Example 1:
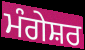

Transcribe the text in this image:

ਮੰਗੇਸ਼ਰ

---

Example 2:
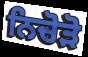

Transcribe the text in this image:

ਨਿਚੋੜੋ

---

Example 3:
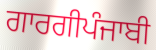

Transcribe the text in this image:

ਗਾਰਗੀਪੰਜਾਬੀ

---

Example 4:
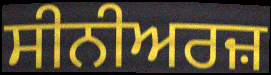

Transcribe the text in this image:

ਸੀਨੀਅਰਜ਼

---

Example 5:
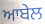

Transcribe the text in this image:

ਆਬੇਲ